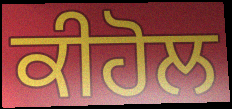
ਕੀਹੋਲ